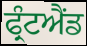
ਫ੍ਰੰਟਐਂਡ